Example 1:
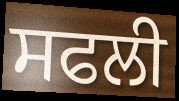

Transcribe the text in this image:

ਸਫਲੀ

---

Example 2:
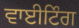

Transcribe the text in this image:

ਵਾਈਟਿੰਗ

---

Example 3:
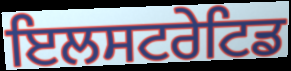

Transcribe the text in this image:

ਇਲਸਟਰੇਟਿਡ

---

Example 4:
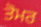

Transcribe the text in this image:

ਤੋਮਰ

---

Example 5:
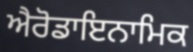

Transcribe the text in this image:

ਐਰੋਡਾਇਨਾਮਿਕ